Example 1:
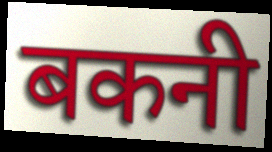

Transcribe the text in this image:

बकनी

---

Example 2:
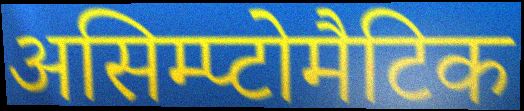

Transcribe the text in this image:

असिम्प्टोमैटिक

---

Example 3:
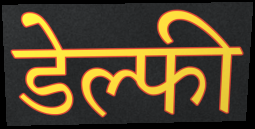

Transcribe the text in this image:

डेल्फी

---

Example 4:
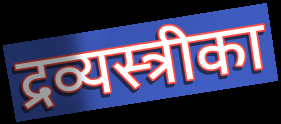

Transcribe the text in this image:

द्रव्यस्त्रीका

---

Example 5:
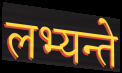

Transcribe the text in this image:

लभ्यन्ते